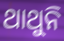
ଥାଥୁନି